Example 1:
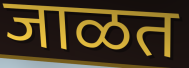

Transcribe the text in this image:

जाळत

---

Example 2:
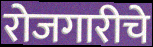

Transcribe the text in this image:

रोजगारीचे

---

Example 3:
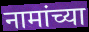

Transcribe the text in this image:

नामांच्या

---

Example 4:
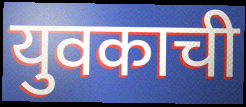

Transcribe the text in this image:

युवकाची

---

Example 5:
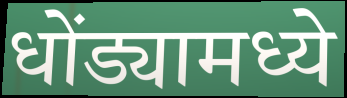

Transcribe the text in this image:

धोंड्यामध्ये